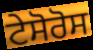
ਟੇਸੋਰੋਸ